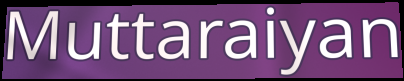
Muttaraiyan